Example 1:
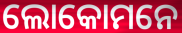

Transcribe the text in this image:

ଲୋକୋମନେ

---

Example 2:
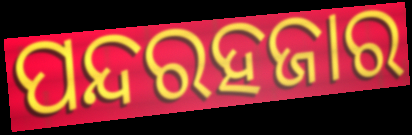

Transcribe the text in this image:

ପନ୍ଦରହଜାର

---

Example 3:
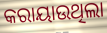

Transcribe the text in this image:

କରାୟାଉଥିଲା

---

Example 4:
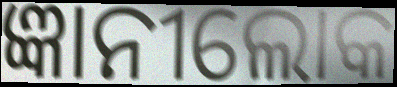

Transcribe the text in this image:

ଜ୍ଞାନୀଲୋକ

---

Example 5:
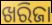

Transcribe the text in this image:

ଖରିଜା